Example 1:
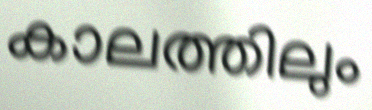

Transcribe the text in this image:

കാലത്തിലും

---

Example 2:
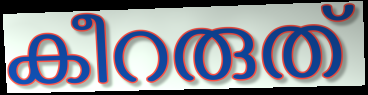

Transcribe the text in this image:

കീറരുത്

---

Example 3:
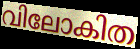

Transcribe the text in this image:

വിലോകിത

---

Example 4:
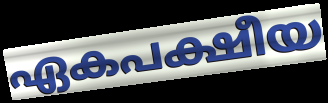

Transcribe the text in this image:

ഏകപക്ഷീയ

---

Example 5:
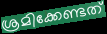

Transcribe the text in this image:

ശ്രമിക്കേണ്ടത്